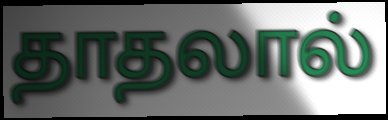
தாதலால்